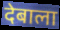
देबाला